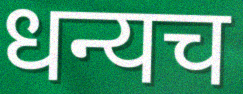
धन्यच